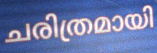
ചരിത്രമായി